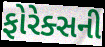
ફોરેક્સની